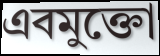
এবমুক্তো